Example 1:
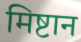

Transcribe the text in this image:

मिष्टान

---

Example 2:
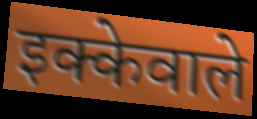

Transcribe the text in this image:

इक्केवाले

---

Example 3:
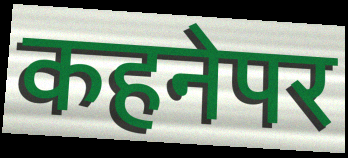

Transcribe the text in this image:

कहनेपर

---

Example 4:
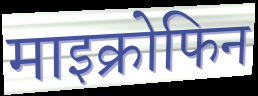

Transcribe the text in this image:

माइक्रोफिन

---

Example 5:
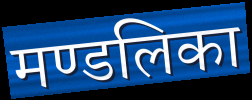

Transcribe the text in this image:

मण्डलिका